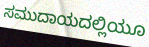
ಸಮುದಾಯದಲ್ಲಿಯೂ